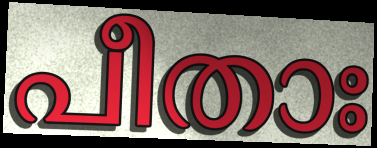
പീതാഃ